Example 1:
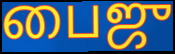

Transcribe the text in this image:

பைஜு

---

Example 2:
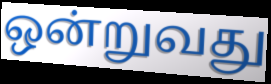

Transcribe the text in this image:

ஒன்றுவது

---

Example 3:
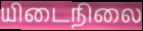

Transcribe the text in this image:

யிடைநிலை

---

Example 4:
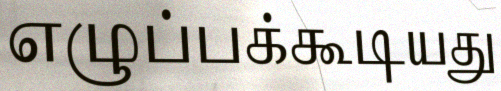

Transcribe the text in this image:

எழுப்பக்கூடியது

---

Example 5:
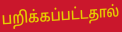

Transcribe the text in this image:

பறிக்கப்பட்டதால்